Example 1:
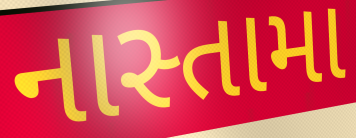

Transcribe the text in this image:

નાસ્તામા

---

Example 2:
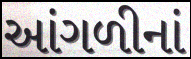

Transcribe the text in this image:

આંગળીનાં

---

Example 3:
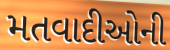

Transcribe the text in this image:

મતવાદીઓની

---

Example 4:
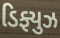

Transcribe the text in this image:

ડિફ્યુઝ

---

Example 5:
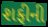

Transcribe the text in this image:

શફીની